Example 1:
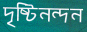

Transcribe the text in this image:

দৃষ্টিনন্দন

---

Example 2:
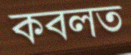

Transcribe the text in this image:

কবলত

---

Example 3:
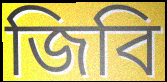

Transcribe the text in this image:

জিবি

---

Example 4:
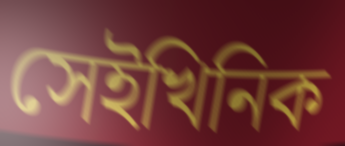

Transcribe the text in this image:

সেইখিনিক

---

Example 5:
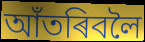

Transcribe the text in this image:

আঁতৰিবলৈ